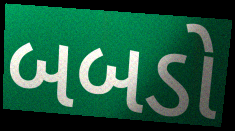
બબડો